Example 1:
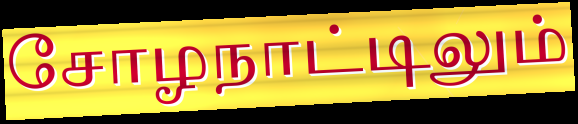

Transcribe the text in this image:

சோழநாட்டிலும்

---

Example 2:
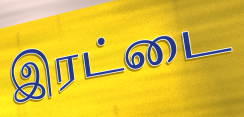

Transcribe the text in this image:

இரட்டை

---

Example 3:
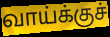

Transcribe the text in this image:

வாய்க்குச்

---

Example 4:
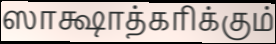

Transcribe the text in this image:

ஸாக்ஷாத்கரிக்கும்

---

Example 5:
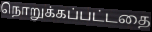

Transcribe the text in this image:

நொறுக்கப்பட்டதை